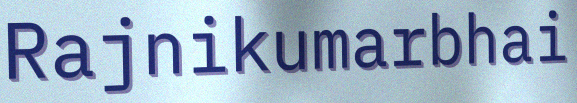
Rajnikumarbhai